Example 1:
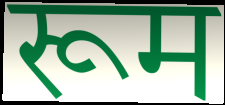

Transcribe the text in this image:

रूम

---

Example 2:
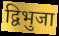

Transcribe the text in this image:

द्विभुजा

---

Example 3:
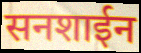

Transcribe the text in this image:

सनशाईन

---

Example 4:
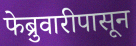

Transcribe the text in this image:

फेब्रुवारीपासून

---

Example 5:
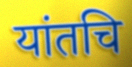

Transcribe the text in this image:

यांतचि